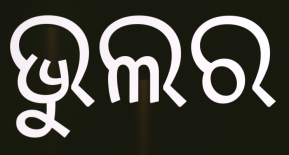
ଭୁଲର